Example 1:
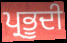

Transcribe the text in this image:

ਪ੍ਰਭੂਦੀ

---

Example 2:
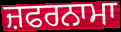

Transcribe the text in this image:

ਜ਼ਫਰਨਾਮਾ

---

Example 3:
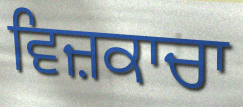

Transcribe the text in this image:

ਵਿਜ਼ਕਾਚਾ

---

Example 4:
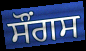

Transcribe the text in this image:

ਸੌਂਗਸ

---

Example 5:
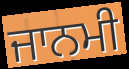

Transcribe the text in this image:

ਜਾਨਮੀ